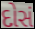
દોસં